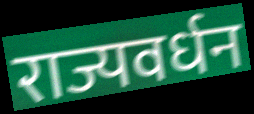
राज्यवर्धन